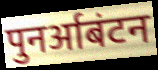
पुनर्आबंटन